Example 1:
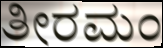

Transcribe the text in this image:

ತೀರಮಂ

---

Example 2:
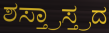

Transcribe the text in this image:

ಶಸ್ತ್ರಾಸ್ತ್ರದ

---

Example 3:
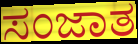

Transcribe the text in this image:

ಸಂಜಾತ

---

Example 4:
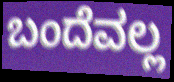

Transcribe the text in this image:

ಬಂದೆವಲ್ಲ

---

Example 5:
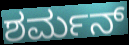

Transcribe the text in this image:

ಶರ್ಮನ್